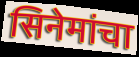
सिनेमांचा